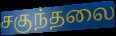
சகுந்தலை